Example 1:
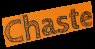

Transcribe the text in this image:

Chaste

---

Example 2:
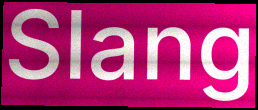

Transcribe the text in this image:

Slang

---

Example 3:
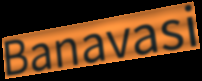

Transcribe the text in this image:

Banavasi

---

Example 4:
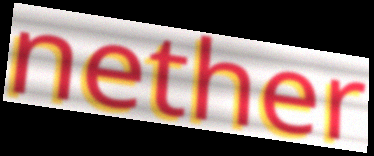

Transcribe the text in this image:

nether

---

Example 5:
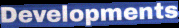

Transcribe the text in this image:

Developments